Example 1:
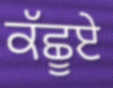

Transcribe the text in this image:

ਕੱਛੂਏ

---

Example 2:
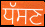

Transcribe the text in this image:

ਧੱਸਣ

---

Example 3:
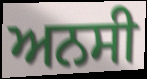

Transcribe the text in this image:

ਅਨਸੀ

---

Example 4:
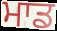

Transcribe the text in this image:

ਮਾਡ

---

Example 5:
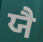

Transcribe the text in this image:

ਯੈ